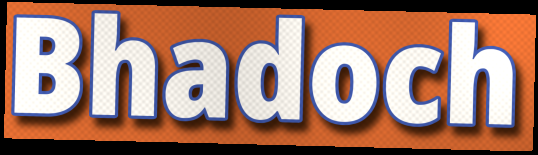
Bhadoch